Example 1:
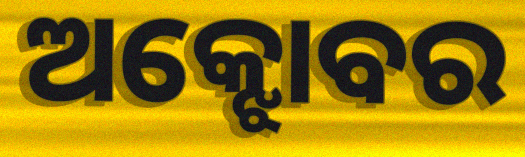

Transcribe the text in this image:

ଅକ୍ଝୋବର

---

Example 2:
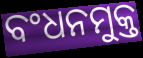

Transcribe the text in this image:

ବଂଧନମୁକ୍ତ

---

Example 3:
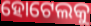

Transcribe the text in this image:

ହୋଟେଲକୁ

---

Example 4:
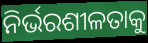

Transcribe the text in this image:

ନିର୍ଭରଶୀଳତାକୁ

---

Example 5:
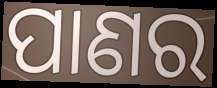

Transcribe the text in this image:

ପାଣର